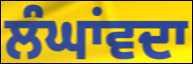
ਲੰਘਾਂਵਦਾ